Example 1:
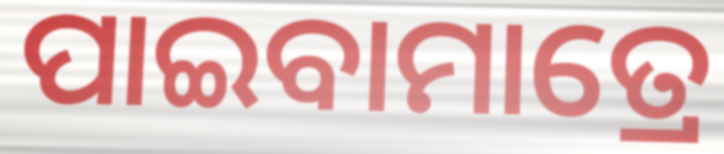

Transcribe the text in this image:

ପାଇବାମାତ୍ରେ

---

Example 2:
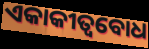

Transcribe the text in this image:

ଏକାକୀତ୍ୱବୋଧ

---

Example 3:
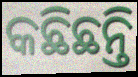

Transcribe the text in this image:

କଛିଛନ୍ତି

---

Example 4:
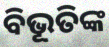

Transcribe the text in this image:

ବିଭୂତିଙ୍କ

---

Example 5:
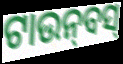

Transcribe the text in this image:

ଟାଉନ୍‍ବସ୍